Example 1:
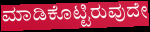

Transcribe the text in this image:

ಮಾಡಿಕೊಟ್ಟಿರುವುದೇ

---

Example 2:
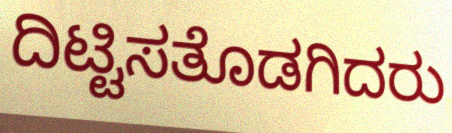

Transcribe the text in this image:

ದಿಟ್ಟಿಸತೊಡಗಿದರು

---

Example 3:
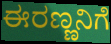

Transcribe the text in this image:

ಈರಣ್ಣನಿಗೆ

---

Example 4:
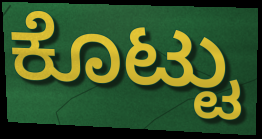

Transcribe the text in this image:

ಕೊಟ್ಟು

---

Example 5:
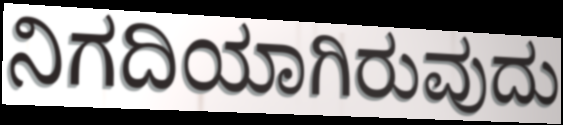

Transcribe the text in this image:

ನಿಗದಿಯಾಗಿರುವುದು